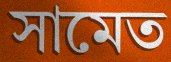
সামেত